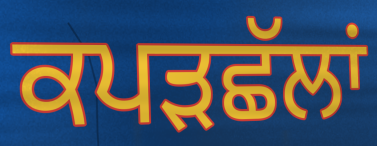
ਕਪੜਛੱਲਾਂ